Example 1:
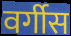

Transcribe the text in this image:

वर्गीस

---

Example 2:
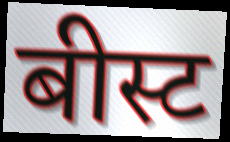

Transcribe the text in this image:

बीस्ट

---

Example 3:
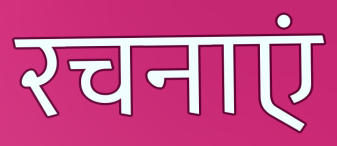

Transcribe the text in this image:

रचनाएं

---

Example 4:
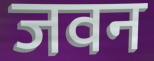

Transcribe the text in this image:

जवन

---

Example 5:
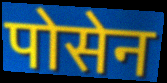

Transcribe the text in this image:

पोसेन